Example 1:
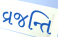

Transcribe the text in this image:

વ્રજન્તિ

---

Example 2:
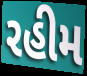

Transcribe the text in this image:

રહીમ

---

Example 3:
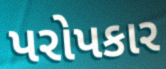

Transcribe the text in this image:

પરોપકાર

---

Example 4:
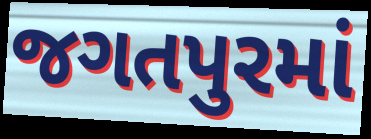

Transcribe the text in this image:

જગતપુરમાં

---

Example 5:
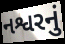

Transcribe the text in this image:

નશ્વરનું